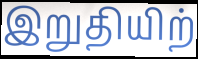
இறுதியிற்